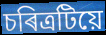
চৰিত্ৰটিয়ে